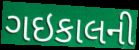
ગઇકાલની